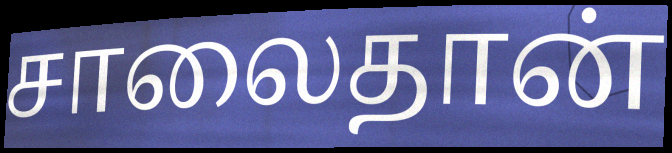
சாலைதான்